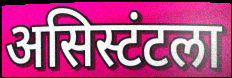
असिस्टंटला